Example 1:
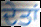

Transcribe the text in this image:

ਦੇਤਾਂ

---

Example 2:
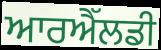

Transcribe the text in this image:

ਆਰਐੱਲਡੀ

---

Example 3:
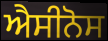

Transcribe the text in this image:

ਐਸੀਨੋਸ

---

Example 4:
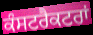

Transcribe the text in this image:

ਕੰਸਟਰੈਕਟਰਾਂ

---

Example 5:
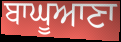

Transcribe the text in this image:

ਬਾਘੂਆਣਾ